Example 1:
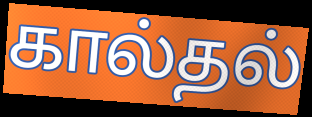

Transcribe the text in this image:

கால்தல்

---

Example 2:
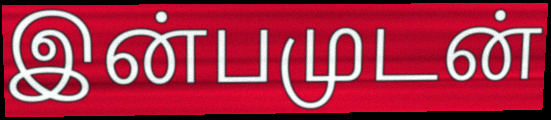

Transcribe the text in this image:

இன்பமுடன்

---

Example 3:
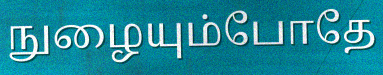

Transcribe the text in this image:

நுழையும்போதே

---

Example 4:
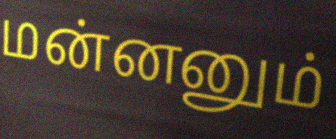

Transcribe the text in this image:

மன்னனும்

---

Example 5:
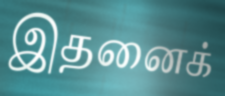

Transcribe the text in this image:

இதனைக்